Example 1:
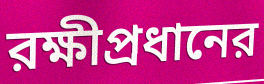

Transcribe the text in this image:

রক্ষীপ্রধানের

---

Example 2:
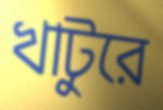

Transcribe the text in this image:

খাটুরে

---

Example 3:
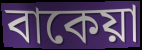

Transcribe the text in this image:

বাকেয়া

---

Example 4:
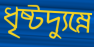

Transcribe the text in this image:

ধৃষ্টদ্যুম্নে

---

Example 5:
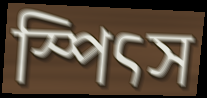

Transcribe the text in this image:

স্পিৎস